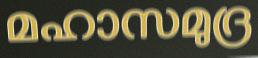
മഹാസമുദ്ര